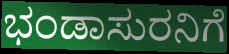
ಭಂಡಾಸುರನಿಗೆ